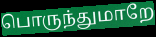
பொருந்துமாறே